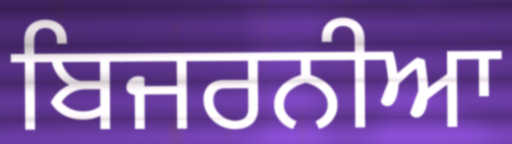
ਬਿਜਰਨੀਆ